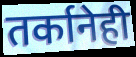
तर्कानेही